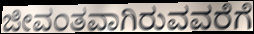
ಜೀವಂತವಾಗಿರುವವರೆಗೆ